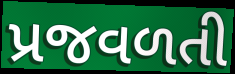
પ્રજવળતી